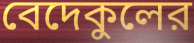
বেদেকুলের